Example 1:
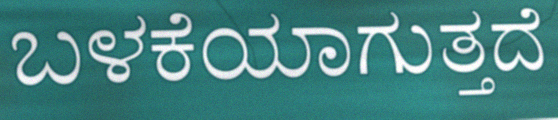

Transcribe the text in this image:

ಬಳಕೆಯಾಗುತ್ತದೆ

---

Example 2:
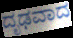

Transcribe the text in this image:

ದೃಢವಾದ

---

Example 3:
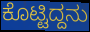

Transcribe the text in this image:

ಕೊಟ್ಟಿದ್ದನು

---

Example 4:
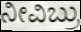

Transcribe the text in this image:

ನೀವಿಬ್ರು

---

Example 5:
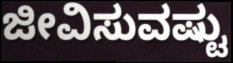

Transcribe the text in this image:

ಜೀವಿಸುವಷ್ಟು